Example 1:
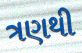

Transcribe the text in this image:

ત્રણથી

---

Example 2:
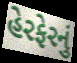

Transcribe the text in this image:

હેરફેરનું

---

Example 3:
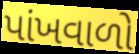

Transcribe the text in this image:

પાંખવાળો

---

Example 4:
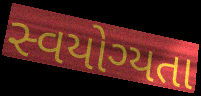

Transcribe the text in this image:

સ્વયોગ્યતા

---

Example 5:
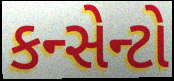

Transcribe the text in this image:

કન્સેન્ટો